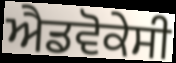
ਐਡਵੋਕੇਸੀ